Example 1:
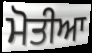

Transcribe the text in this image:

ਮੋਤੀਆ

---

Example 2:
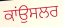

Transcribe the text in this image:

ਕਾਂਉਸਲਰ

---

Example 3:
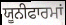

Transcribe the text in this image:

ਯੂਨੀਫਾਰਮਾਂ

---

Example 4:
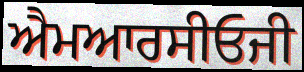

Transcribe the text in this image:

ਐਮਆਰਸੀਓਜੀ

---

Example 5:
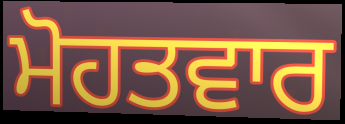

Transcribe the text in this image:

ਮੋਹਤਵਾਰ